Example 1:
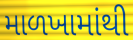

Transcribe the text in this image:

માળખામાંથી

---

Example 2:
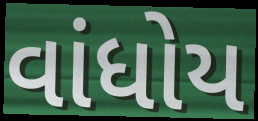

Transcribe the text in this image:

વાંધોય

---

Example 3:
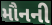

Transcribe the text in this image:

મૌનની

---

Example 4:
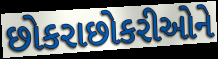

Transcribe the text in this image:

છોકરાછોકરીઓને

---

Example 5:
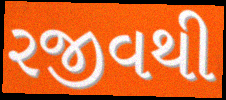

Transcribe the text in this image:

રજીવથી